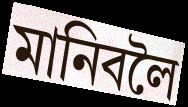
মানিবলৈ